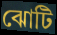
ঝোটি